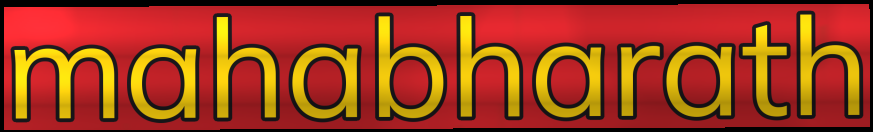
mahabharath